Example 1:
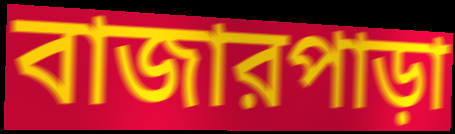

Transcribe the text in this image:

বাজারপাড়া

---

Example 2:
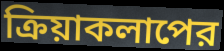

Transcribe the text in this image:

ক্রিয়াকলাপের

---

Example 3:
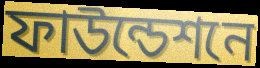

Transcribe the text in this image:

ফাউন্ডেশনে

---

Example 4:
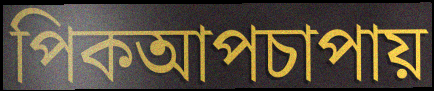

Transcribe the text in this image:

পিকআপচাপায়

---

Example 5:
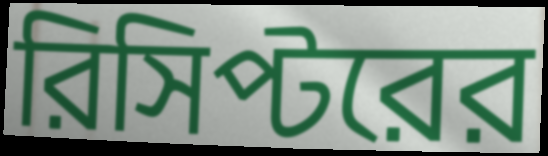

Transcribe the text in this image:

রিসিপ্টরের